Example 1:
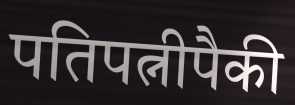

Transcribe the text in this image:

पतिपत्नीपैकी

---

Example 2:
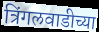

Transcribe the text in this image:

त्रिंगलवाडीच्या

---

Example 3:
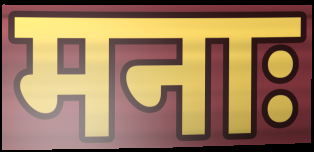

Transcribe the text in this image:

मनाः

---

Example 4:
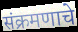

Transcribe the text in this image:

संक्रमणाचे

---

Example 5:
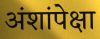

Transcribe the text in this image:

अंशांपेक्षा